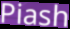
Piash